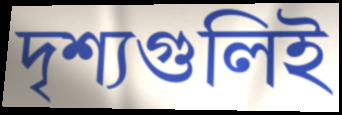
দৃশ্যগুলিই